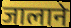
जालाने